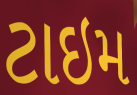
ટાઇમ